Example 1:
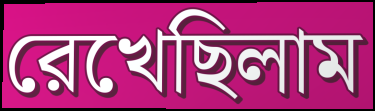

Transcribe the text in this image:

রেখেছিলাম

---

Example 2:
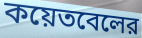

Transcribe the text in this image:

কয়েতবেলের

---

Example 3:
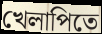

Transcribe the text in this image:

খেলাপিতে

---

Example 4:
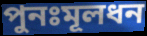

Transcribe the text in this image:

পুনঃমূলধন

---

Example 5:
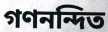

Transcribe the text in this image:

গণনন্দিত